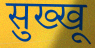
सुख्खू